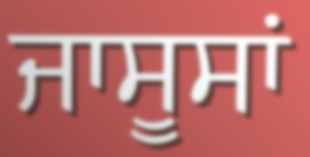
ਜਾਸੂਸਾਂ